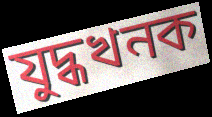
যুদ্ধখনক